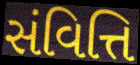
સંવિત્તિ